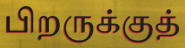
பிறருக்குத்